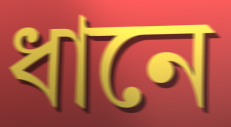
ধানে